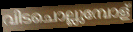
വിടചൊല്ലുമ്പോള്